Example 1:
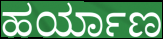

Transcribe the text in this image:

ಹರ್ಯಾಣ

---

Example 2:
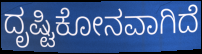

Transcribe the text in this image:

ದೃಷ್ಟಿಕೋನವಾಗಿದೆ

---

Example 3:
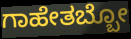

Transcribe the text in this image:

ಗಾಹೇತಬ್ಬೋ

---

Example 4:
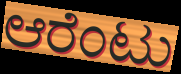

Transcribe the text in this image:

ಆರೆಂಟು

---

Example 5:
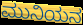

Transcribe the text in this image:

ಮುನಿಯನ